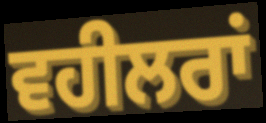
ਵਹੀਲਰਾਂ